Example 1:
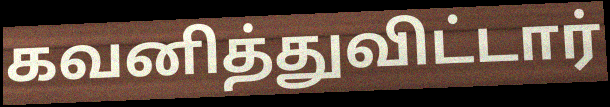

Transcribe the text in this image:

கவனித்துவிட்டார்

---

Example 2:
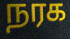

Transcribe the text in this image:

நரக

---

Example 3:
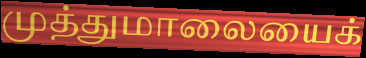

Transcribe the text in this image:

முத்துமாலையைக்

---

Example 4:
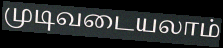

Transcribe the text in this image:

முடிவடையலாம்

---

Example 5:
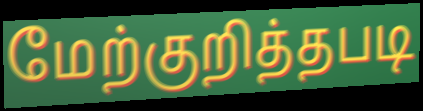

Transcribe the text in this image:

மேற்குறித்தபடி